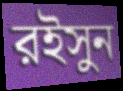
রইসুন